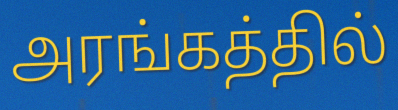
அரங்கத்தில்